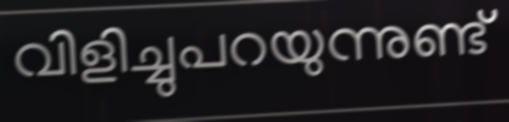
വിളിച്ചുപറയുന്നുണ്ട്